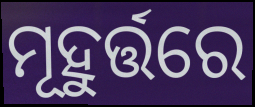
ମୂହୁର୍ତ୍ତରେ